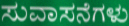
ಸುವಾಸನೆಗಳು